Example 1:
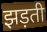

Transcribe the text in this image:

झड़ती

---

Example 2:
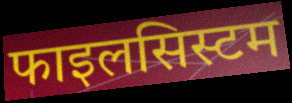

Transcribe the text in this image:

फाइलसिस्टम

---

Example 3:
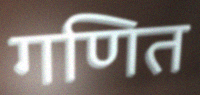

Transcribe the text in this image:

गणित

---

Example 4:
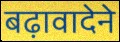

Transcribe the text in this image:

बढ़ावादेने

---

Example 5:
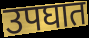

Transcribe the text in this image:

उपघात